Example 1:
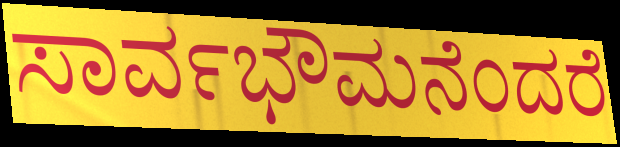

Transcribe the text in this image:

ಸಾರ್ವಭೌಮನೆಂದರೆ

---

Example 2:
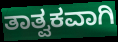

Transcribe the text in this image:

ತಾತ್ವಕವಾಗಿ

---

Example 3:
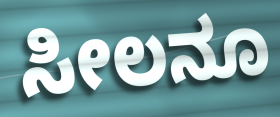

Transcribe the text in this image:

ಸೀಲನೂ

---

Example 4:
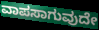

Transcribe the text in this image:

ವಾಪಸಾಗುವುದೇ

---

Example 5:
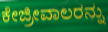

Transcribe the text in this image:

ಕೇಜ್ರೀವಾಲರನ್ನು